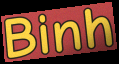
Binh